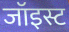
जॉइस्ट